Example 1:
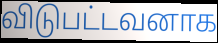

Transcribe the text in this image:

விடுபட்டவனாக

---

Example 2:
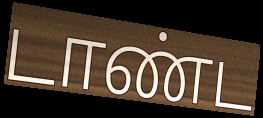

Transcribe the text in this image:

டாண்ட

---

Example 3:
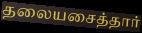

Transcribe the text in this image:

தலையசைத்தார்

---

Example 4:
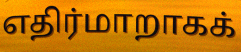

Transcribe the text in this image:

எதிர்மாறாகக்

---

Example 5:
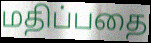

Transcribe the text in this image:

மதிப்பதை